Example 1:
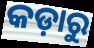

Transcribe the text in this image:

କଡ଼ାରୁ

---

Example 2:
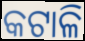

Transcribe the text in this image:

କଟାଳି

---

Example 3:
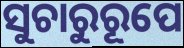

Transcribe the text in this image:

ସୁଚାରୁରୂପେ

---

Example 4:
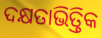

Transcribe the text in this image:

ଦକ୍ଷତାଭିତ୍ତିକ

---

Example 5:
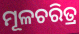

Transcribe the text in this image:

ମୂଳଚରିତ୍ର